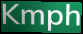
Kmph